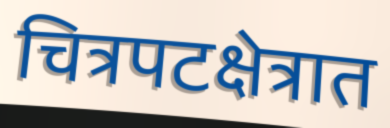
चित्रपटक्षेत्रात